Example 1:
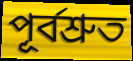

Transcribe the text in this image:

পূর্বশ্রুত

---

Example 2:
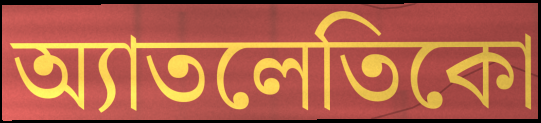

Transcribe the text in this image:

অ্যাতলেতিকো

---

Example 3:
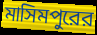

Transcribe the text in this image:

মাসিমপুরের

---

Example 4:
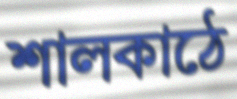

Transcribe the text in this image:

শালকাঠে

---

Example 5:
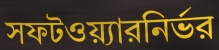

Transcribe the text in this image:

সফটওয়্যারনির্ভর